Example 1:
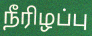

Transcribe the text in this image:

நீரிழப்பு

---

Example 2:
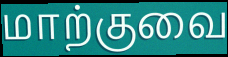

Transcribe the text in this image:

மாற்குவை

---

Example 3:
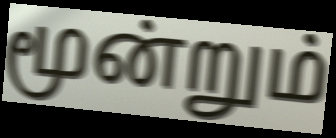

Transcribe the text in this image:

மூன்றும்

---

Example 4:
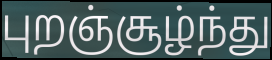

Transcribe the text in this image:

புறஞ்சூழ்ந்து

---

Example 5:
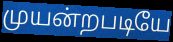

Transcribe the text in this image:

முயன்றபடியே